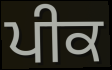
ਪੀਕ